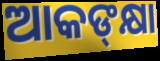
ଆକଙ୍‌କ୍ଷା